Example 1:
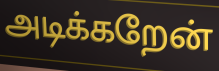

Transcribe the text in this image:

அடிக்கறேன்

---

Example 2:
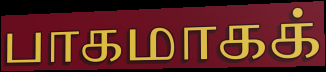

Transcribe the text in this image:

பாகமாகக்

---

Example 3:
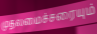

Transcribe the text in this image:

முதலமைச்சரையும்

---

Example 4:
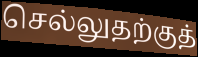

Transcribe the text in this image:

செல்லுதற்குத்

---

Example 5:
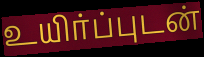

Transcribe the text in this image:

உயிர்ப்புடன்